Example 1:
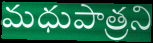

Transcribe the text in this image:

మధుపాత్రని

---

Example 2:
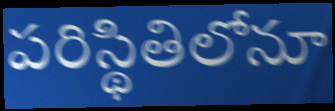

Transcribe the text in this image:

పరిస్థితిలోనూ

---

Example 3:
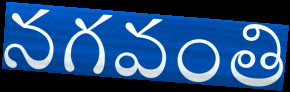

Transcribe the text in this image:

నగవంతి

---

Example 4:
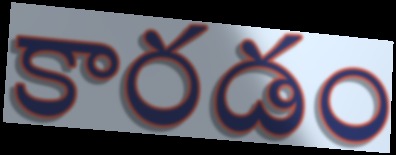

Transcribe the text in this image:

కారడం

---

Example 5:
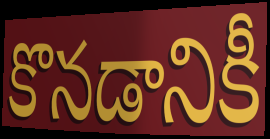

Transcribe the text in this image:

కొనడానికీ